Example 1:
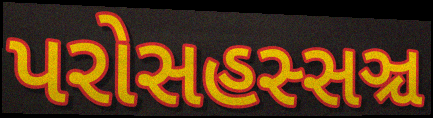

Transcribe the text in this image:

પરોસહસ્સઞ્ચ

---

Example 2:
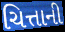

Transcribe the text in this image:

ચિત્તાની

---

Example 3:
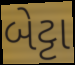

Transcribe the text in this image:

બેટ્ટા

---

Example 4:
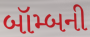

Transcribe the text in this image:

બૉમ્બની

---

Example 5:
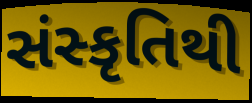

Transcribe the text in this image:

સંસ્કૃતિથી